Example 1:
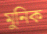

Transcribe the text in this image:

মুনিক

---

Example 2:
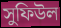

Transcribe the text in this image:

সুফিউল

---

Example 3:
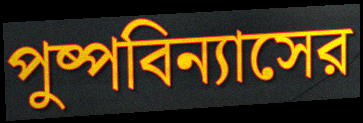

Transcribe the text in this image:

পুষ্পবিন্যাসের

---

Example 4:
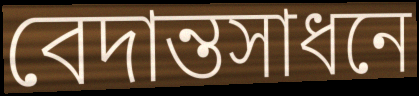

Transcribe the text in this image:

বেদান্তসাধনে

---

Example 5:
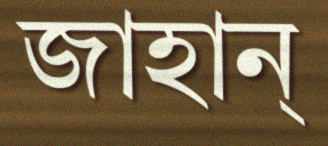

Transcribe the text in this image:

জাহান্